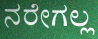
ನರೇಗಲ್ಲ